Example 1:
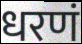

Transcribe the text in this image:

धरणं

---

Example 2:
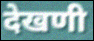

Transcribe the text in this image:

देखणी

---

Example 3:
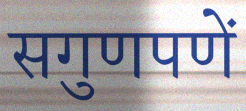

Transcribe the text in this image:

सगुणपणें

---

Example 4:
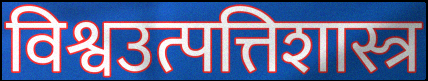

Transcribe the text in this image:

विश्वउत्पत्तिशास्त्र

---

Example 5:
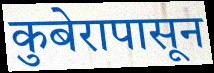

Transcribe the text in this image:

कुबेरापासून